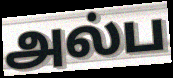
அல்ப